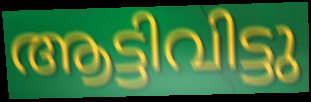
ആട്ടിവിട്ടു